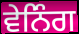
ਵੇਨਿੰਗ